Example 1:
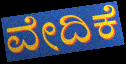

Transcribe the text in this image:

ವೇದಿಕೆ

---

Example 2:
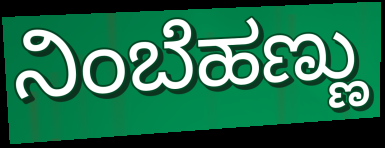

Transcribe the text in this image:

ನಿಂಬೆಹಣ್ಣು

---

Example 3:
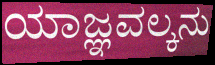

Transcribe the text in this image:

ಯಾಜ್ಞವಲ್ಕನು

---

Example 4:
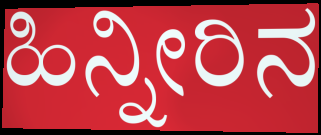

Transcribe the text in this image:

ಹಿನ್ನೀರಿನ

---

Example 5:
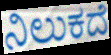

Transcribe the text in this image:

ನಿಲುಕದೆ